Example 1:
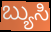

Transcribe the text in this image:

ಬ್ಯುಸಿ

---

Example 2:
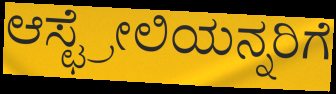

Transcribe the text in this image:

ಆಸ್ಟ್ರೇಲಿಯನ್ನರಿಗೆ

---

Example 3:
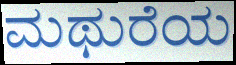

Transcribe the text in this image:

ಮಥುರೆಯ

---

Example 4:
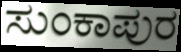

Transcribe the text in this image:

ಸುಂಕಾಪುರ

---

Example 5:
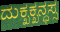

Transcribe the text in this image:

ದುಕ್ಖಕ್ಖನ್ಧಸ್ಸ